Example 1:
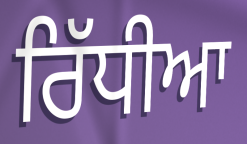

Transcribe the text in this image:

ਰਿੱਧੀਆ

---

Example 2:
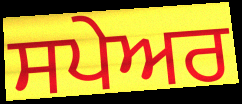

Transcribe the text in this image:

ਸਪੇਅਰ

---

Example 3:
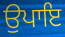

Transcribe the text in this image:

ਉਪਾਇ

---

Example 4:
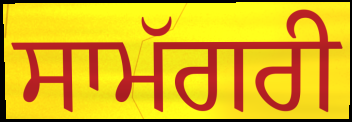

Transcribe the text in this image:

ਸਾਮੱਗਰੀ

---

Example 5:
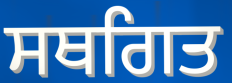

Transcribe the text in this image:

ਸਥਗਿਤ